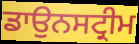
ਡਾਉਨਸਟ੍ਰੀਮ